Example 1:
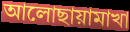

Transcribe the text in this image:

আলোছায়ামাখা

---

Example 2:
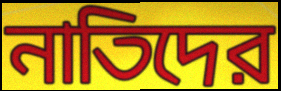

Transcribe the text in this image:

নাতিদের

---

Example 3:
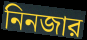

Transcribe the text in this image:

নিনজার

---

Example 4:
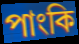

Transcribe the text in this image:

পাংকি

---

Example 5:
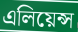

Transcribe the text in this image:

এলিয়েন্স